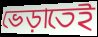
ভেড়াতেই